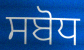
ਸਬੋਧ